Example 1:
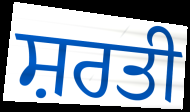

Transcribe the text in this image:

ਸ਼ਰਤੀ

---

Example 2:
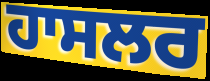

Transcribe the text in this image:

ਹਾਸਲਰ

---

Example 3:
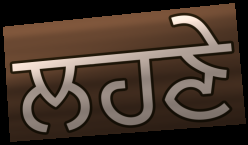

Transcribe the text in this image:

ਲਹਣੇ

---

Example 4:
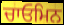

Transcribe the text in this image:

ਚਾਓਮਿਨ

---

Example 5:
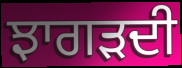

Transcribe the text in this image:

ਝਾਗੜਦੀ